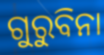
ଗୁରୁବିନା